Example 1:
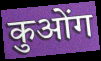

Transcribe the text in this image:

कुओंग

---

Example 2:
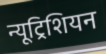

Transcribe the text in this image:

न्यूट्रिशियन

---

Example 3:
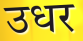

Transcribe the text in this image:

उधर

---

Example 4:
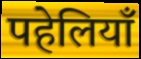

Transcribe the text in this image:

पहेलियाँ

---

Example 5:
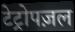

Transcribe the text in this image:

टेट्रोपज़ल